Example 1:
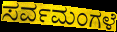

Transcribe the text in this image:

ಸರ್ವಮಂಗಳೆ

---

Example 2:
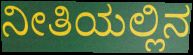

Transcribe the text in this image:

ನೀತಿಯಲ್ಲಿನ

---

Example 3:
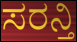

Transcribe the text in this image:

ಸರನ್ತಿ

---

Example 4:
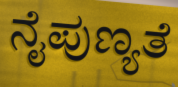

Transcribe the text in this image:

ನೈಪುಣ್ಯತೆ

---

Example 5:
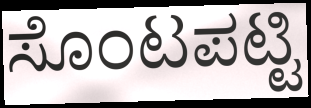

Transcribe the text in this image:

ಸೊಂಟಪಟ್ಟಿ